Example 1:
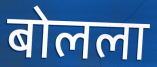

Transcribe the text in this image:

बोलला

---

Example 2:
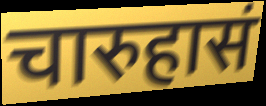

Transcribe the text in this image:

चारुहासं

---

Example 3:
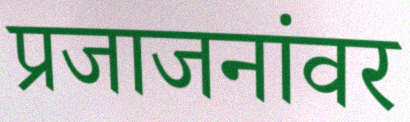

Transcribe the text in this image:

प्रजाजनांवर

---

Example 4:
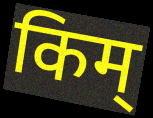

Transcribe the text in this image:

किम्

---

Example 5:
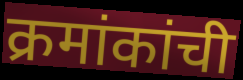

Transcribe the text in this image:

क्रमांकांची